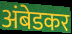
अंबेडकर